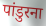
पांडुरना